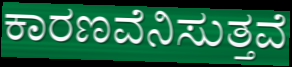
ಕಾರಣವೆನಿಸುತ್ತವೆ